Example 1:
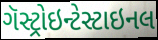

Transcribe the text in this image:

ગૅસ્ટ્રોઇન્ટેસ્ટાઇનલ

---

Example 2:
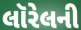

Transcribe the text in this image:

લૉરેલની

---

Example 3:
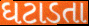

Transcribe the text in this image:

ઘટાડતા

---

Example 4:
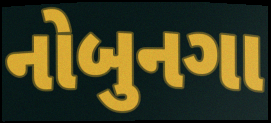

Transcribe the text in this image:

નોબુનગા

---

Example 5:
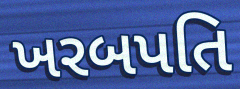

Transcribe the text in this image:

ખરબપતિ